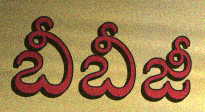
బీబీజీ